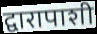
द्वारापाशी